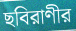
ছবিরাণীর